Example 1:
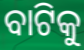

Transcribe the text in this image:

ବାଟିକୁ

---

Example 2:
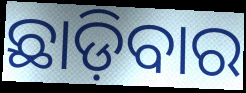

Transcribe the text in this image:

ଛାଡ଼ିବାର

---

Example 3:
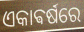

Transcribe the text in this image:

ଏକାଵର୍ଷରେ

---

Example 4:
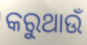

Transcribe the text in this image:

କରୁଥାଉଁ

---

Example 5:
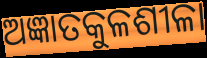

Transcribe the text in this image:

ଅଜ୍ଞାତକୁଳଶୀଳା